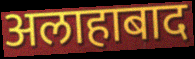
अलाहाबाद